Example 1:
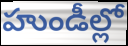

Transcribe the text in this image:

హుండీల్లో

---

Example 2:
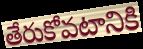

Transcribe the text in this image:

తేరుకోవటానికి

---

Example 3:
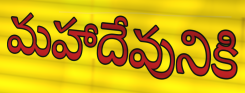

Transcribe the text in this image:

మహాదేవునికి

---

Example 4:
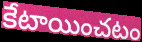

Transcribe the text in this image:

కేటాయించటం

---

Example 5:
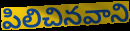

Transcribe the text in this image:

పిలిచినవాని